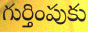
గుర్తింపుకు